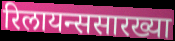
रिलायन्ससारख्या